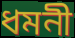
ধমনী